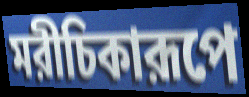
মরীচিকারূপে